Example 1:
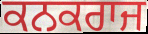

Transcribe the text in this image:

ਕਨਕਰਾਜ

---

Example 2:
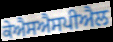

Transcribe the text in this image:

ਕੇਐਸਐਸਪੀਐਲ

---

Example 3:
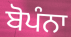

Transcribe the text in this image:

ਬੋਪੰਨਾ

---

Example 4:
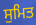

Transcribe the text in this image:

ਸੁਮਿਤ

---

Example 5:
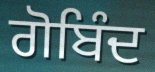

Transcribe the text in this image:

ਗੋਬਿੰਦ